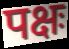
पक्षः